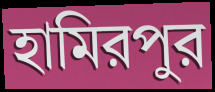
হামিরপুর